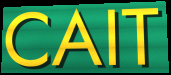
CAIT